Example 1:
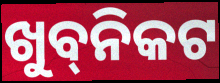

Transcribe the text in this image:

ଖୁବ୍‌ନିକଟ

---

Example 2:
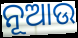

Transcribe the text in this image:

ନୂଆଉ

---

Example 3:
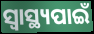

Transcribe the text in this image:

ସ୍ଵାସ୍ଥ୍ୟପାଇଁ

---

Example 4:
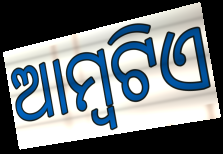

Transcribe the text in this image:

ଆମ୍ବଟିଏ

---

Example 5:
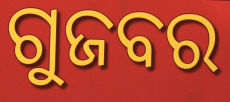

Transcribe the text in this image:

ଗୁଜବର